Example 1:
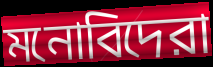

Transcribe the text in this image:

মনোবিদেরা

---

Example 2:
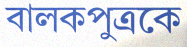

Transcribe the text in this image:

বালকপুত্রকে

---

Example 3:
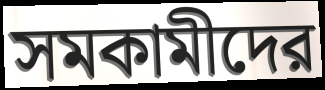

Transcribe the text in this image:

সমকামীদের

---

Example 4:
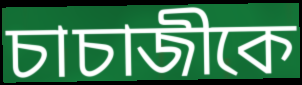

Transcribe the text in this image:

চাচাজীকে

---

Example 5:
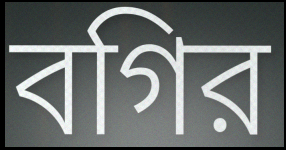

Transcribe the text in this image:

বগির